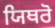
ਯਿਥਰੋ